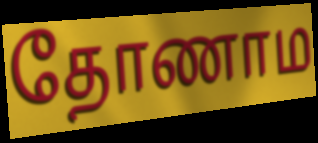
தோணாம